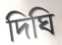
দিঘি